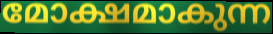
മോക്ഷമാകുന്ന